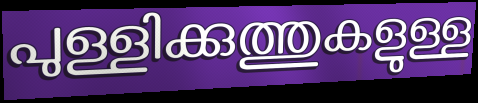
പുള്ളിക്കുത്തുകളുള്ള